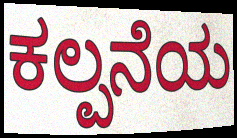
ಕಲ್ಪನೆಯ